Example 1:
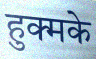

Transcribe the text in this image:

हुक्मके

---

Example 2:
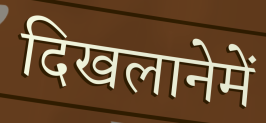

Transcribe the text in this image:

दिखलानेमें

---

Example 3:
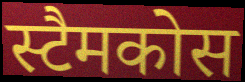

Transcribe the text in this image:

स्टैमकोस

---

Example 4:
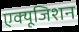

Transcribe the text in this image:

एक्यूजिशन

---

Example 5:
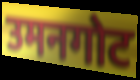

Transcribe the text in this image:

उमनगोट